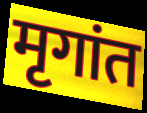
मृगांत